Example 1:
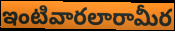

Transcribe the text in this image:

ఇంటివారలారామీర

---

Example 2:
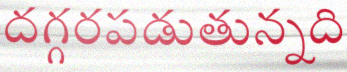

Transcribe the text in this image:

దగ్గరపడుతున్నది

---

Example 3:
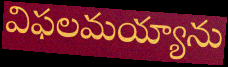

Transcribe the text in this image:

విఫలమయ్యాను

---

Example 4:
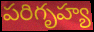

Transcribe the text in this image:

పరిగృహ్య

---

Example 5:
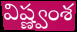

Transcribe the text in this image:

విష్ణ్వంశ